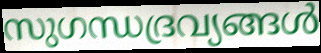
സുഗന്ധദ്രവ്യങ്ങൾ